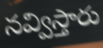
నవ్విస్తారు